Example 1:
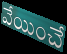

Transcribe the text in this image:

వేయించే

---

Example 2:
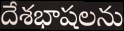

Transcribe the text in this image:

దేశభాషలను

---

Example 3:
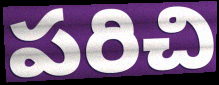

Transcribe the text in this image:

పరిచి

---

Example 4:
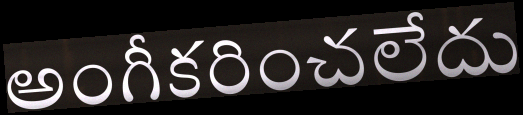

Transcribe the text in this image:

అంగీకరించలేదు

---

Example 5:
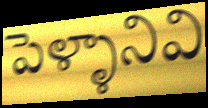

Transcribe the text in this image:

పెళ్ళానివి